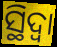
ସ୍ଥିଦ୍ଵା